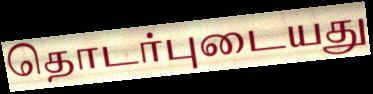
தொடர்புடையது